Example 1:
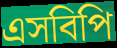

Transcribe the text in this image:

এসবিপি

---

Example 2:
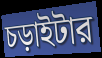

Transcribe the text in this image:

চড়াইটার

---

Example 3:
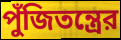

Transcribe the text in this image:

পুঁজিতন্ত্রের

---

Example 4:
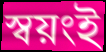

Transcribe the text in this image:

স্বয়ংই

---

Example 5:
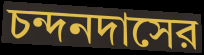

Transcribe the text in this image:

চন্দনদাসের